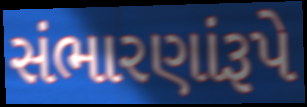
સંભારણાંરૂપે